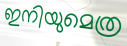
ഇനിയുമെത്ര